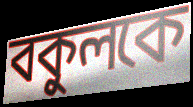
বকুলকে